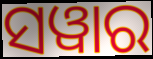
ସୱାର